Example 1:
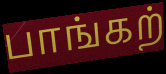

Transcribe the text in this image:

பாங்கற்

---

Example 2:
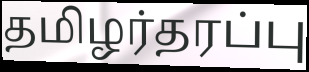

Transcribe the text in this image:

தமிழர்தரப்பு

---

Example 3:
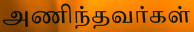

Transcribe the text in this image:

அணிந்தவர்கள்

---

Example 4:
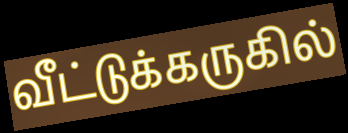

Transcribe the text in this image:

வீட்டுக்கருகில்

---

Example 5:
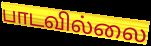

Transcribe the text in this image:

பாடவில்லை